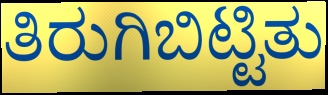
ತಿರುಗಿಬಿಟ್ಟಿತು